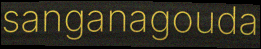
sanganagouda